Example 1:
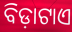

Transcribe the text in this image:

ବିଡ଼ାଟାଏ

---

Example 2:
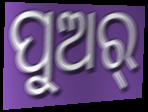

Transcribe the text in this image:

ପୁଅର୍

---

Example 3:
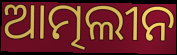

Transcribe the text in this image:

ଆତ୍ମଲୀନ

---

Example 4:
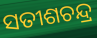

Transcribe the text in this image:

ସତୀଶଚନ୍ଦ୍ର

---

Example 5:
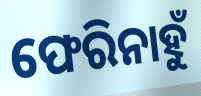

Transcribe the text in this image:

ଫେରିନାହୁଁ